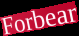
Forbear